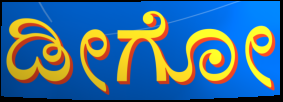
ಡೀಗೋ